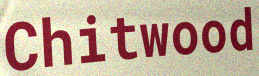
Chitwood